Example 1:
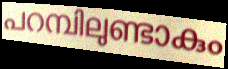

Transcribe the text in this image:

പറമ്പിലുണ്ടാകും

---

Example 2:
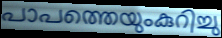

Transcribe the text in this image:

പാപത്തെയുംകുറിച്ചു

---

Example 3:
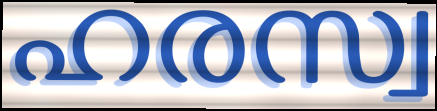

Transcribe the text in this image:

ഹരസ്വ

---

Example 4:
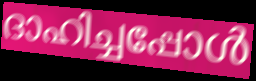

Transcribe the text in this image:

ദാഹിച്ചപ്പോൾ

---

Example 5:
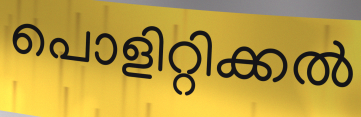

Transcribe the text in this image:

പൊളിറ്റിക്കൽ